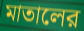
মাতালের